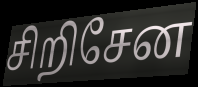
சிறிசேன